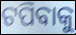
ଟପିବାକୁ